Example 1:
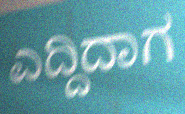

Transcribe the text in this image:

ಎದ್ದಿದಾಗ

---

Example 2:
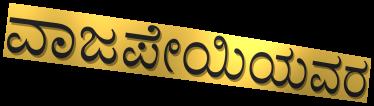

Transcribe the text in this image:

ವಾಜಪೇಯಿಯವರ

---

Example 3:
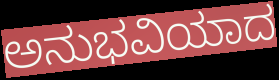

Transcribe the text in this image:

ಅನುಭವಿಯಾದ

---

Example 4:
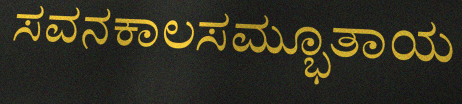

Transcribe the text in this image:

ಸವನಕಾಲಸಮ್ಭೂತಾಯ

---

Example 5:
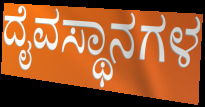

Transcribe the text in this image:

ದೈವಸ್ಥಾನಗಳ